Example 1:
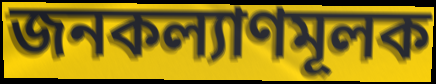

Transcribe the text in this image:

জনকল্যাণমূলক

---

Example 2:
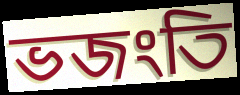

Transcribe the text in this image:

ভজংতি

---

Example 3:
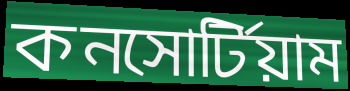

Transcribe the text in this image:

কনসোর্টিয়াম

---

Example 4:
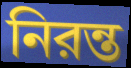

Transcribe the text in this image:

নিরন্ত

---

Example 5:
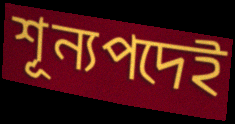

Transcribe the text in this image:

শূন্যপদেই